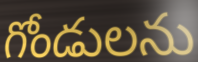
గోండులను